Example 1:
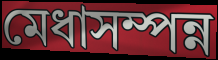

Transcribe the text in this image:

মেধাসম্পন্ন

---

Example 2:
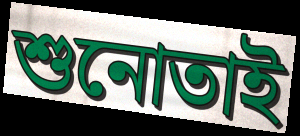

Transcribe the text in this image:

শুনোতাই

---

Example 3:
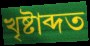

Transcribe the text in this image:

খৃষ্টাব্দত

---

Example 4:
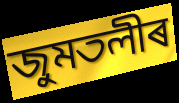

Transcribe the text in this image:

জুমতলীৰ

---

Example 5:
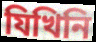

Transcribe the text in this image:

যিখিনি